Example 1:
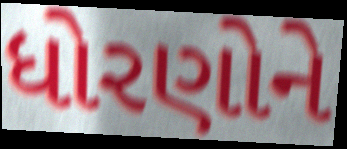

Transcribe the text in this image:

ધોરણોને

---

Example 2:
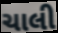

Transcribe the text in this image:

ચાલી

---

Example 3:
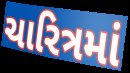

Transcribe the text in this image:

ચારિત્રમાં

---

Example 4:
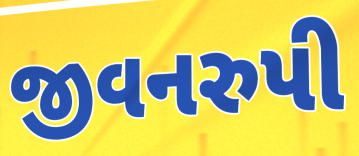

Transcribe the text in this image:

જીવનરુપી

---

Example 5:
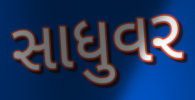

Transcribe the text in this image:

સાધુવર